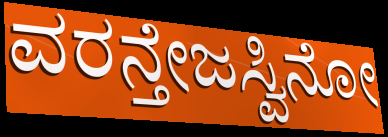
ವರನ್ತೇಜಸ್ವಿನೋ